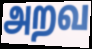
அறவ